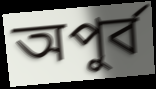
অপুর্ব